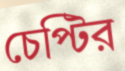
চেপ্টির